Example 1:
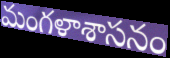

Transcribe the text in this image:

మంగళాశాసనం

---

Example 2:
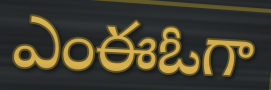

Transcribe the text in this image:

ఎంఈఓగా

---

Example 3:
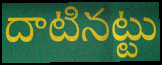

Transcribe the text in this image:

దాటినట్టు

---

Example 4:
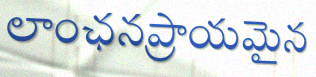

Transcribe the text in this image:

లాంఛనప్రాయమైన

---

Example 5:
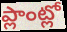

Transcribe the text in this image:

ప్లాంట్లో